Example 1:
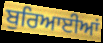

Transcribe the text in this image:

ਬੁਰਿਆਈਆਂ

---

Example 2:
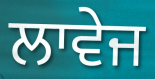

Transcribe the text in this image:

ਲਾਵੇਜ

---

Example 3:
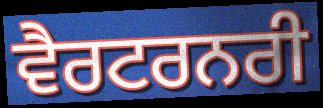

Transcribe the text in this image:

ਵੈਰਟਰਨਰੀ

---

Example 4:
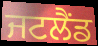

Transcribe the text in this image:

ਜਟਲੈਂਡ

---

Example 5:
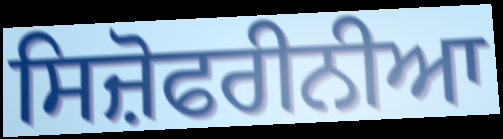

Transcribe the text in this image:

ਸਿਜ਼ੋਫਰੀਨੀਆ